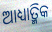
ଆଧ୍ୟାତ୍ମିକ